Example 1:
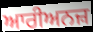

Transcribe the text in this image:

ਆਰੀਅਨਜ਼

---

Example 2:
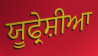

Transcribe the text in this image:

ਯੂਫ੍ਰੇਸ਼ੀਆ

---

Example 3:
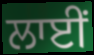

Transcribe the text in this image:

ਲਾਈਂ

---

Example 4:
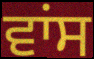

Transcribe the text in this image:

ਵਾਂਸ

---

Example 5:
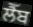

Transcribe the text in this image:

ਲੈੱਬ